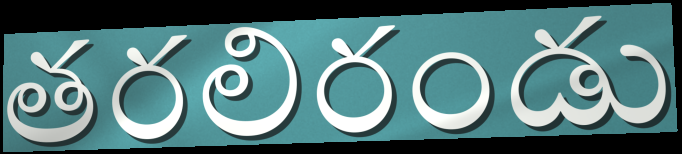
తరలిరండు